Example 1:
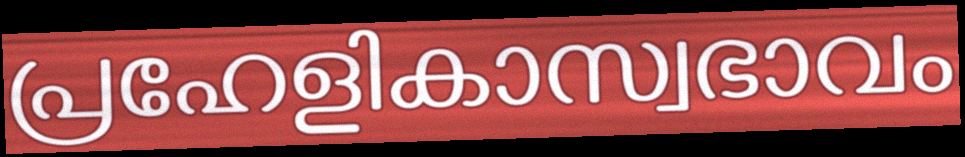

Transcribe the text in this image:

പ്രഹേളികാസ്വഭാവം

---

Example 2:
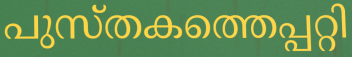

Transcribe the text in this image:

പുസ്തകത്തെപ്പറ്റി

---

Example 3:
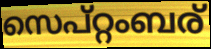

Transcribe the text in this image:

സെപ്റ്റംബര്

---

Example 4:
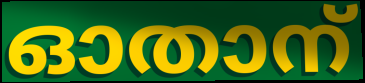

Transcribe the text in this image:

ഓതാന്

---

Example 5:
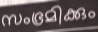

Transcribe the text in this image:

സംഭ്രമിക്കും